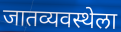
जातव्यवस्थेला